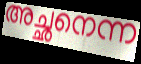
അച്ഛനെന്ന